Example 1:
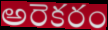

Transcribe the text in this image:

అరెకరం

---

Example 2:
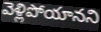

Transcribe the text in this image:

వెళ్లిపోయానని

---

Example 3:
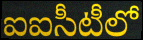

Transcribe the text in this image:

ఐఐసీటీలో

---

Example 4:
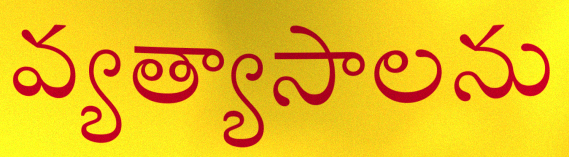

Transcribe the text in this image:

వ్యత్యాసాలను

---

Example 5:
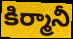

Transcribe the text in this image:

కిర్మానీ